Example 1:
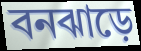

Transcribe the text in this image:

বনঝাড়ে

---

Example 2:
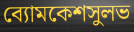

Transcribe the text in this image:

ব্যোমকেশসুলভ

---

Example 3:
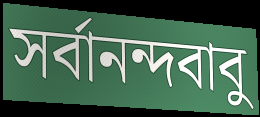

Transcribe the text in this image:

সর্বানন্দবাবু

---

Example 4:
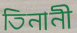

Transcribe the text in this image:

তিনানী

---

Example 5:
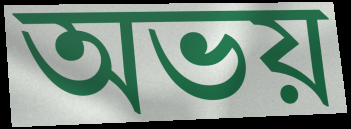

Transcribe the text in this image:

অভয়